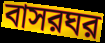
বাসরঘর